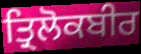
ਤ੍ਰਿਲੋਕਬੀਰ